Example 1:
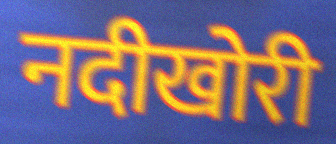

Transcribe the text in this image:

नदीखोरी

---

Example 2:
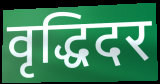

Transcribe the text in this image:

वृद्धिदर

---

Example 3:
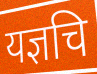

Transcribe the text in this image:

यज्ञचि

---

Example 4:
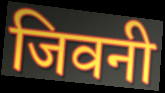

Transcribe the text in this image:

जिवनी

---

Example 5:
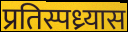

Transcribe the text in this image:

प्रतिस्पध्र्यास